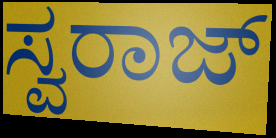
ಸ್ವರಾಜ್